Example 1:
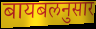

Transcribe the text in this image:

बायबलनुसार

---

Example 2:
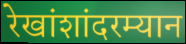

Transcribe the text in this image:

रेखांशांदरम्यान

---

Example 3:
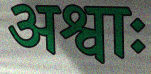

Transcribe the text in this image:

अश्वाः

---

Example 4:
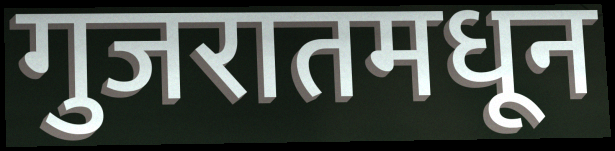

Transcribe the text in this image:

गुजरातमधून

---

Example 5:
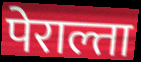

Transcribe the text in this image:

पेराल्ता